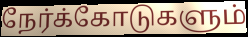
நேர்க்கோடுகளும்